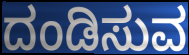
ದಂಡಿಸುವ